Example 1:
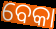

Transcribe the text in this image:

ବେକା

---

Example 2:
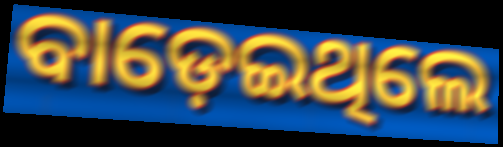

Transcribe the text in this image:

ବାଡ଼େଇଥିଲେ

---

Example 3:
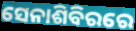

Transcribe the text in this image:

ସେନାଶିବିରରେ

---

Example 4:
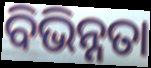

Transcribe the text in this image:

ବିଭିନ୍ନତା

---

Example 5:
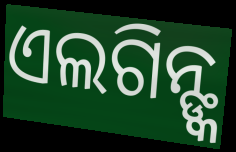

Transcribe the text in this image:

ଏଲଗିନ୍ଙ୍କ